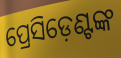
ପ୍ରେସିଡ଼େଣ୍ଟଙ୍କ